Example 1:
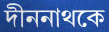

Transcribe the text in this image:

দীননাথকে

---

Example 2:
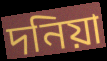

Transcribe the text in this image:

দনিয়া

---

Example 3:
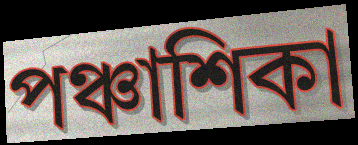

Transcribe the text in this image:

পঞ্চাশিকা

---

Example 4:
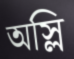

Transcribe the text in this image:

অস্লি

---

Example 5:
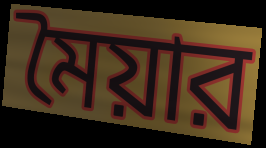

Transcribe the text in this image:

মৈয়ার